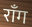
रॉंग